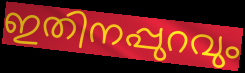
ഇതിനപ്പുറവും